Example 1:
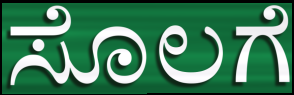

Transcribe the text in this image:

ಸೊಲಗೆ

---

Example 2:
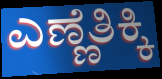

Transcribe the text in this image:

ಎಣ್ಣೆತಿಕ್ಕಿ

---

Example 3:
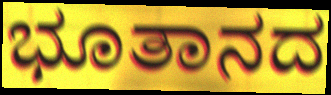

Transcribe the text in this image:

ಭೂತಾನದ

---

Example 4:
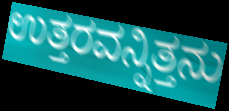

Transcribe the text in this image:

ಉತ್ತರವನ್ನಿತ್ತನು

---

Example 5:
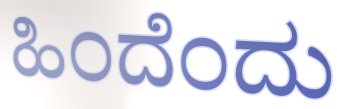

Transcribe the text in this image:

ಹಿಂದೆಂದು